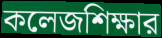
কলেজশিক্ষার